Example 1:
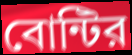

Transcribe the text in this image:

বোন্টির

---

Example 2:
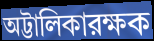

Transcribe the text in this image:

অট্টালিকারক্ষক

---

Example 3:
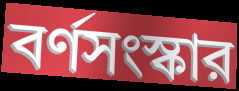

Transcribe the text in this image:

বর্ণসংস্কার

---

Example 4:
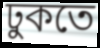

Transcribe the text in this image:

ঢুকতে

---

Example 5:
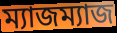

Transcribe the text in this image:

ম্যাজম্যাজ